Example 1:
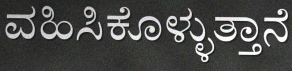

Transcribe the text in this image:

ವಹಿಸಿಕೊಳ್ಳುತ್ತಾನೆ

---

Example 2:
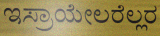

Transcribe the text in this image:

ಇಸ್ರಾಯೇಲರೆಲ್ಲರ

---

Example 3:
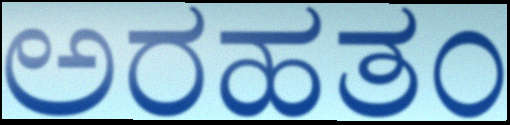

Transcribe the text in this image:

ಅರಹತಂ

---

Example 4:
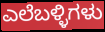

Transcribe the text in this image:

ಎಲೆಬಳ್ಳಿಗಳು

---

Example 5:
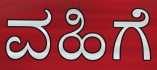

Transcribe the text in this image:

ವಹಿಗೆ